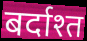
बर्दाश्त